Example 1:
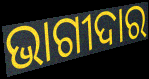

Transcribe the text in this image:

ଭାଗୀଦାର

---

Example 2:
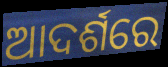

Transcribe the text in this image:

ଆଦର୍ଶରେ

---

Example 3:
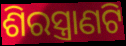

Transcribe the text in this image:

ଶିରସ୍ତ୍ରାଣଟି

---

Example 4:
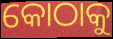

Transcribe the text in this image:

କୋଠାକୁ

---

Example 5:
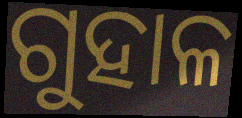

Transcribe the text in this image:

ଗୁହାଳ